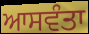
ਆਸਵੰਤਾ